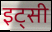
इट्सी